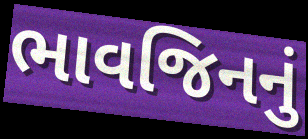
ભાવજિનનું